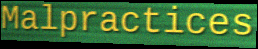
Malpractices